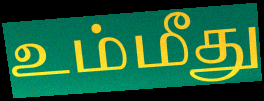
உம்மீது